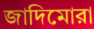
জাদিমোরা